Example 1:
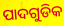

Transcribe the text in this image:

ପାଦଗୁଡିକ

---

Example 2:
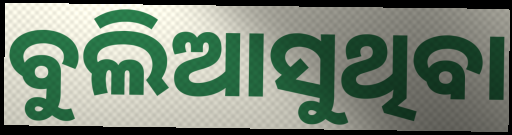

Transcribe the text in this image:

ବୁଲିଆସୁଥିବା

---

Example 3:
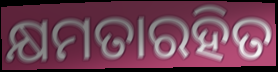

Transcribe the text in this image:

କ୍ଷମତାରହିତ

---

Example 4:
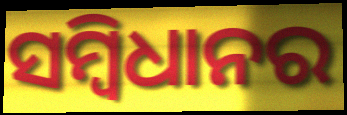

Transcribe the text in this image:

ସମ୍ବିଧାନର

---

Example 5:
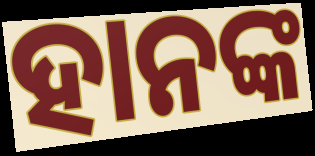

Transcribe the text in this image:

ହାନଙ୍କ